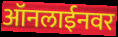
ऑनलाईनवर